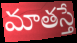
మాతస్తే